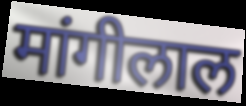
मांगीलाल